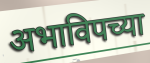
अभाविपच्या